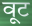
वूट